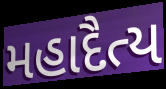
મહાદૈત્ય